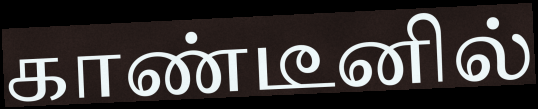
காண்டீனில்